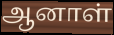
ஆனாள்